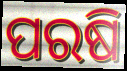
ପରଷି